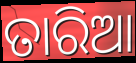
ତାରିଆ